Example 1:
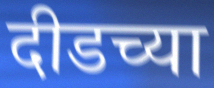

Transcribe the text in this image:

दीडच्या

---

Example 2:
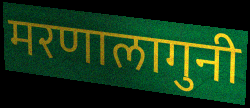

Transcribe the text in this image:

मरणालागुनी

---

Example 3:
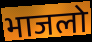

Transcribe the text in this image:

भाजलो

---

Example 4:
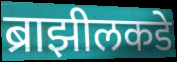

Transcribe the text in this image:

ब्राझीलकडे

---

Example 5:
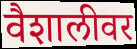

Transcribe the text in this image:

वैशालीवर